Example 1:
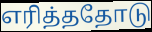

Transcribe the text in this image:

எரித்ததோடு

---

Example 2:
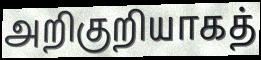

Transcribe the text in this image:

அறிகுறியாகத்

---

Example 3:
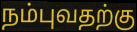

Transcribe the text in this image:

நம்புவதற்கு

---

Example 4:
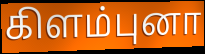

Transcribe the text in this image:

கிளம்புனா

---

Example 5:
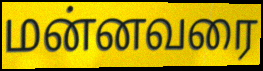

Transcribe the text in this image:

மன்னவரை